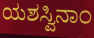
ಯಶಸ್ವಿನಾಂ